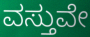
ವಸ್ತುವೇ